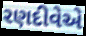
રણદીવેએ